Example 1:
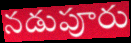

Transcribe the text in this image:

నడుపూరు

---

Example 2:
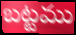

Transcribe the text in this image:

బట్టము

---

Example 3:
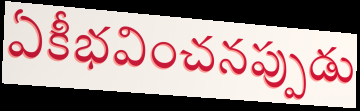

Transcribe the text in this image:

ఏకీభవించనప్పుడు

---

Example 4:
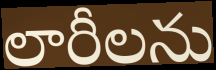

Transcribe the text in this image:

లారీలను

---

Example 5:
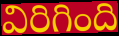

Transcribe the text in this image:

విరిగింది